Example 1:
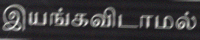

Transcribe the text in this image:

இயங்கவிடாமல்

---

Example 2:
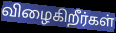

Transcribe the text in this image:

விழைகிறீர்கள்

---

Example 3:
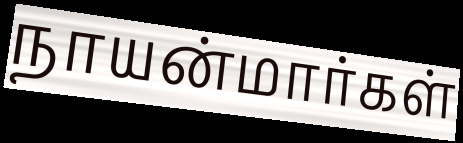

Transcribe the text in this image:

நாயன்மார்கள்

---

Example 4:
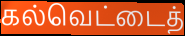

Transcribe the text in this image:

கல்வெட்டைத்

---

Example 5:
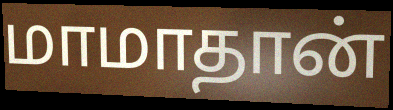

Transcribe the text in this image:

மாமாதான்